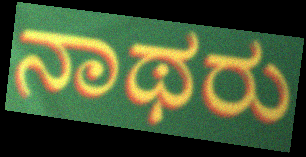
ನಾಥರು